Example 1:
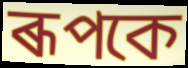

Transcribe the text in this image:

ৰূপকে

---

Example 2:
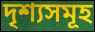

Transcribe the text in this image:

দৃশ্যসমূহ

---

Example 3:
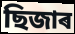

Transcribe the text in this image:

ছিজাৰ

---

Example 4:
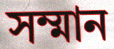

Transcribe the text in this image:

সম্মান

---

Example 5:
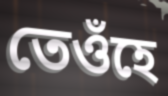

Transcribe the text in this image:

তেওঁহে